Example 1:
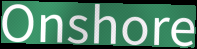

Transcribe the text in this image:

Onshore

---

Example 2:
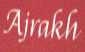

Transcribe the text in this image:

Ajrakh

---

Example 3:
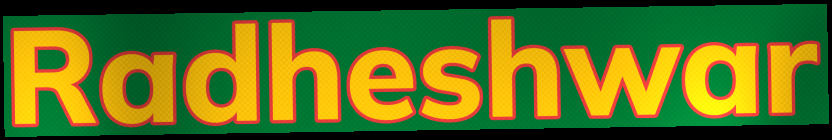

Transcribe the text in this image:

Radheshwar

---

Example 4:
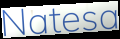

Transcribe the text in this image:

Natesa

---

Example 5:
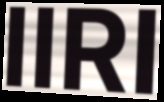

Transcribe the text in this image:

IIRI